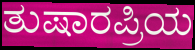
ತುಷಾರಪ್ರಿಯ